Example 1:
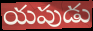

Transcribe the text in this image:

యపుడు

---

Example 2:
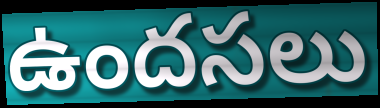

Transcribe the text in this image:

ఉందసలు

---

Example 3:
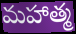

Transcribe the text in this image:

మహాత్మ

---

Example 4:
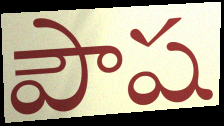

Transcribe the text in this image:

పౌష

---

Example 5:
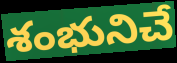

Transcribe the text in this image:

శంభునిచే